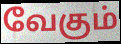
வேகும்